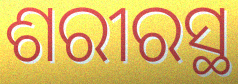
ଶରୀରସ୍ଥ